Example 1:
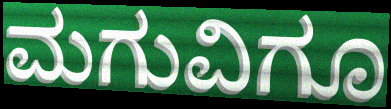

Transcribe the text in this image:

ಮಗುವಿಗೂ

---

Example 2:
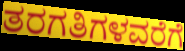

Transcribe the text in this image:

ತರಗತಿಗಳವರೆಗೆ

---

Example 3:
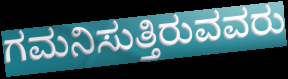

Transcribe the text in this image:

ಗಮನಿಸುತ್ತಿರುವವರು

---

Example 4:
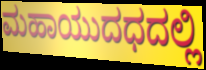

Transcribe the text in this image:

ಮಹಾಯುದಧದಲ್ಲಿ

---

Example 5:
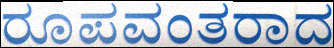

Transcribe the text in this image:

ರೂಪವಂತರಾದ